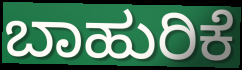
ಬಾಹುರಿಕೆ